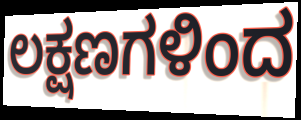
ಲಕ್ಷಣಗಳಿಂದ